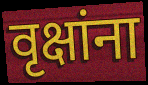
वृक्षांना